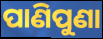
ପାଣିପୁଣା